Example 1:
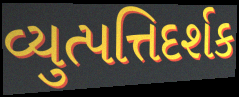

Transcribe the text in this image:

વ્યુત્પત્તિદર્શક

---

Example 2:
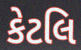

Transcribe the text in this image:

કેટલિ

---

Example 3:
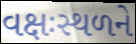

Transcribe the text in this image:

વક્ષઃસ્થળને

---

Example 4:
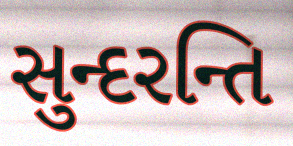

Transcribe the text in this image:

સુન્દરન્તિ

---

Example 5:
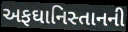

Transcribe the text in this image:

અફઘાનિસ્તાનની